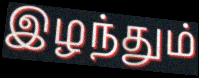
இழந்தும்